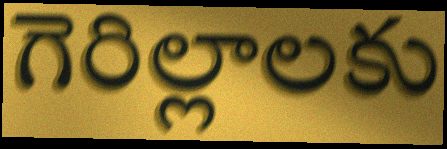
గెరిల్లాలకు